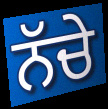
ਨੱਚੇ